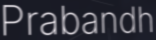
Prabandh